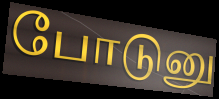
போடுனு